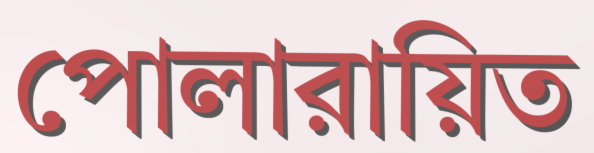
পোলারায়িত